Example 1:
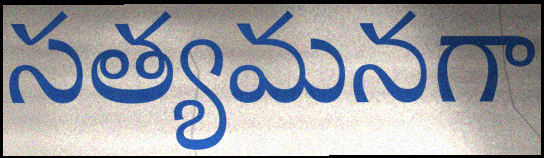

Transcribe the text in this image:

సత్యమనగా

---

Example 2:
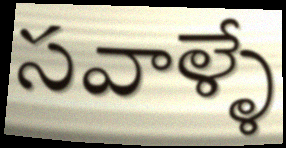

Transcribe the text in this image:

సవాళ్ళే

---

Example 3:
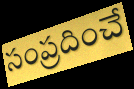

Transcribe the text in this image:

సంప్రదించే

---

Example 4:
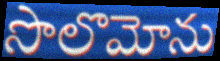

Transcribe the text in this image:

సొలొమోను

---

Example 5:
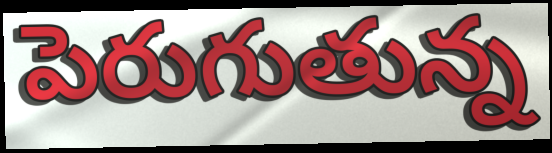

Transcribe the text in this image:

పెరుగుతున్న